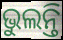
ଭୁଲନ୍ତି